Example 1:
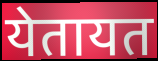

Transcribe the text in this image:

येतायत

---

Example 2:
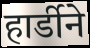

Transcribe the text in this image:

हार्डीने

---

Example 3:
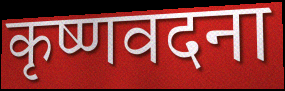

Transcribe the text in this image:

कृष्णवदना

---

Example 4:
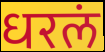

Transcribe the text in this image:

धरलं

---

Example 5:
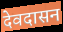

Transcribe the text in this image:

देवदासन